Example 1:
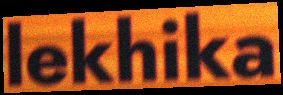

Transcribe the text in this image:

lekhika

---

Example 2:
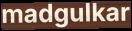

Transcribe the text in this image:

madgulkar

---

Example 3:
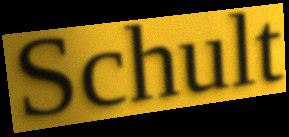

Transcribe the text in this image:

Schult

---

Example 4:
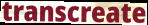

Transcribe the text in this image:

transcreate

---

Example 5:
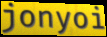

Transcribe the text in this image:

jonyoi